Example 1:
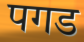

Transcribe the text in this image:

पगड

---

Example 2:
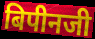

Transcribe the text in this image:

बिपीनजी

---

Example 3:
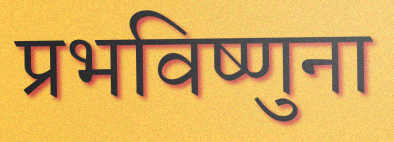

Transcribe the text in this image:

प्रभविष्णुना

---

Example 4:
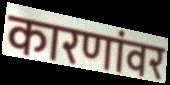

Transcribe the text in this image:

कारणांवर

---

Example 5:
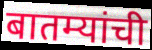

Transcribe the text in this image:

बातम्यांची